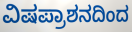
ವಿಷಪ್ರಾಶನದಿಂದ